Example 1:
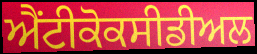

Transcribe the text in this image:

ਐਂਟੀਕੋਕਸੀਡੀਅਲ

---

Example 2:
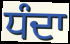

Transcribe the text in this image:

ਧੰਦਾ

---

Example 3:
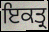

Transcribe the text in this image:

ਇਕਤ੍ਰ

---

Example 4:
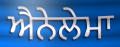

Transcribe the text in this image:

ਐਨੇਲੇਮਾ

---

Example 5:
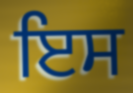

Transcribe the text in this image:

ਇਸ